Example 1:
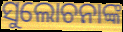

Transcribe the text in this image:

ସୁଲୋଚନାଙ୍କ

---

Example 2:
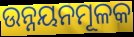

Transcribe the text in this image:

ଉନ୍ନୟନମୂଳକ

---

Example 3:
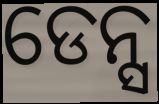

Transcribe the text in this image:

ଡେନ୍ସ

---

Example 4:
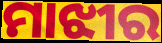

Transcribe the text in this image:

ମାଝୀର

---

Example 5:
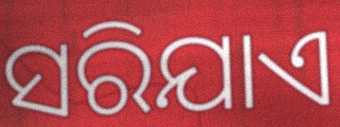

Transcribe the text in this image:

ସରିଯାଏ